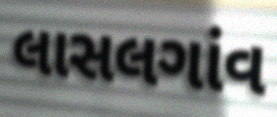
લાસલગાંવ